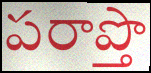
పరాప్తొ